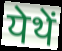
येथें